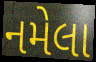
નમેલા